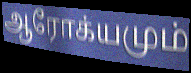
ஆரோக்யமும்